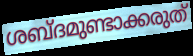
ശബ്ദമുണ്ടാക്കരുത്